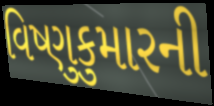
વિષ્ણુકુમારની